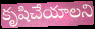
కృషిచేయాలని